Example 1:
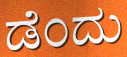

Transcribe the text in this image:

ಡೆಂದು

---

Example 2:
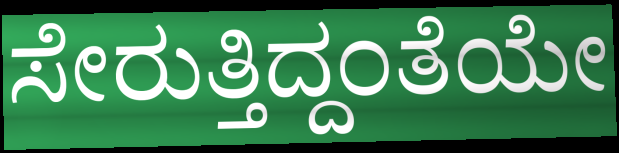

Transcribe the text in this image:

ಸೇರುತ್ತಿದ್ದಂತೆಯೇ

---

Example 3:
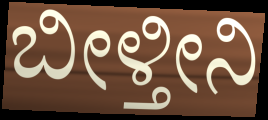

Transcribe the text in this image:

ಬೀಳ್ತೀನಿ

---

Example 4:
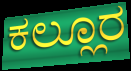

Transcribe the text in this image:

ಕಲ್ಲೂರ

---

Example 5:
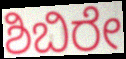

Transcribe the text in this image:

ಶಿಬಿರೇ